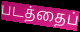
படத்தைப்